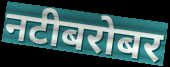
नटीबरोबर